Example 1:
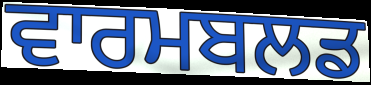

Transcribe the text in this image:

ਵਾਰਮਬਲਡ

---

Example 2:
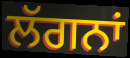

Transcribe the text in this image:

ਲੱਗਨਾਂ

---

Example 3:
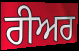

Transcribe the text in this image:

ਰੀਅਰ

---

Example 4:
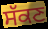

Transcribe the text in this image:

ਸੱਕਣ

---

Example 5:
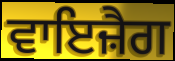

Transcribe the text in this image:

ਵਾਇਜ਼ੈਗ